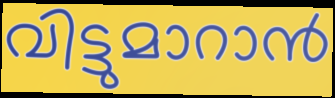
വിട്ടുമാറാൻ